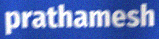
prathamesh